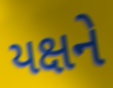
યક્ષને